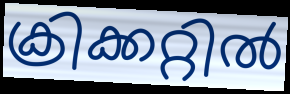
ക്രിക്കറ്റിൽ